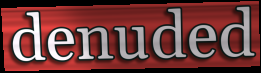
denuded